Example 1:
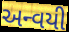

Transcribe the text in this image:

અન્વયી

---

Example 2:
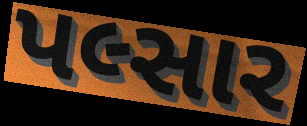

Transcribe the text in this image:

પલ્સાર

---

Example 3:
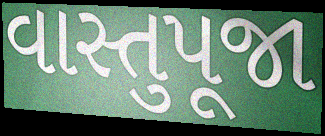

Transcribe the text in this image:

વાસ્તુપૂજા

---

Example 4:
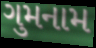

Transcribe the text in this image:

ગુમનામ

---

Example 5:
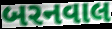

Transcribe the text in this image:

બરનવાલ